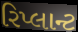
રિપ્લાન્ટ